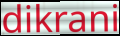
dikrani